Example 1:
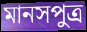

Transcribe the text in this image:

মানসপুত্ৰ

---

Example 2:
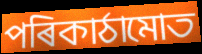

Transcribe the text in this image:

পৰিকাঠামোত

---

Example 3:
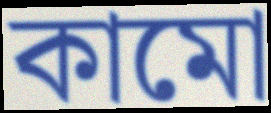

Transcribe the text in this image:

কামো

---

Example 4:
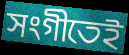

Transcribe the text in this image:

সংগীতেই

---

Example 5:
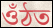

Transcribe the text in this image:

ওঁঠত